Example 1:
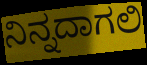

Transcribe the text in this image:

ನಿನ್ನದಾಗಲಿ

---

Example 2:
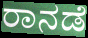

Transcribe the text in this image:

ರಾನಡೆ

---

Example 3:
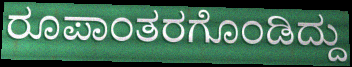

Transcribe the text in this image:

ರೂಪಾಂತರಗೊಂಡಿದ್ದು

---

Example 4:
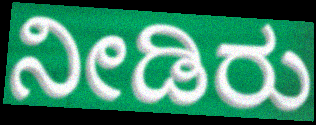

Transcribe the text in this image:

ನೀಡಿರು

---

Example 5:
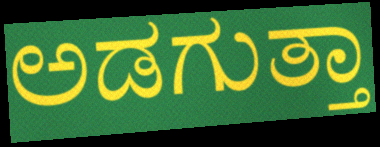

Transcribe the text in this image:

ಅಡಗುತ್ತಾ